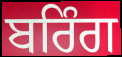
ਬਰਿੰਗ